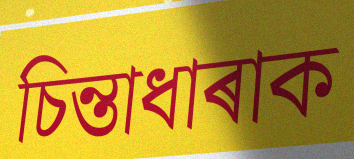
চিন্তাধাৰাক